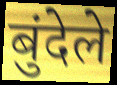
बुंदेले